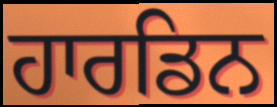
ਹਾਰਡਿਨ